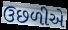
ઉછળીએ